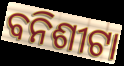
ବନିଶୀଟା